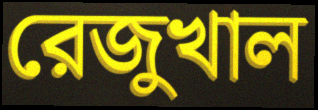
রেজুখাল